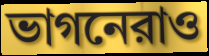
ভাগনেরাও